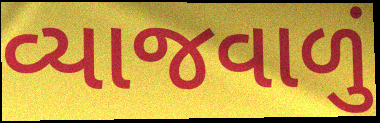
વ્યાજવાળું